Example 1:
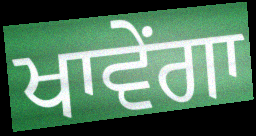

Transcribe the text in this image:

ਖਾਵੇਂਗਾ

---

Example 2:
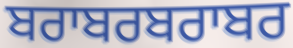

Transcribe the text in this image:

ਬਰਾਬਰਬਰਾਬਰ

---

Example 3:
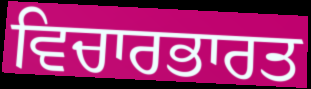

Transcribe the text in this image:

ਵਿਚਾਰਭਾਰਤ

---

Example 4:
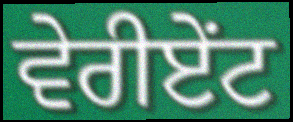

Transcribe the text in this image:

ਵੇਰੀਏਂਟ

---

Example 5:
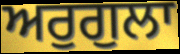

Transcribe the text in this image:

ਅਰੁਗੁਲਾ